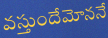
వస్తుందేమోననే